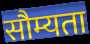
सौम्यता